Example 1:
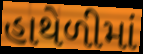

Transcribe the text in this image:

હાથેળીમાં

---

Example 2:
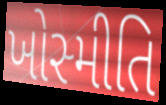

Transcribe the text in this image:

ખોસ્મીતિ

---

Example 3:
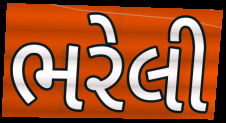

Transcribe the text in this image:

ભરેલી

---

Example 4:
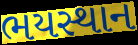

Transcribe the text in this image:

ભયસ્થાન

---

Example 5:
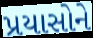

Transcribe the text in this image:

પ્રયાસોને